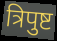
त्रिपुष्ट